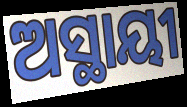
ଅସ୍ଥାୟୀ